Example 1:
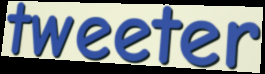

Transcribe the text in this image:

tweeter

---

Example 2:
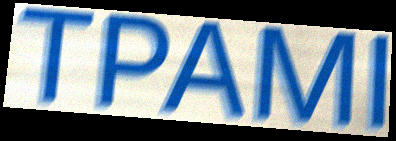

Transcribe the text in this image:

TPAMI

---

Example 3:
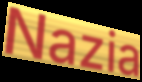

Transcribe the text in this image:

Nazia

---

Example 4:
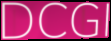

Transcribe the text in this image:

DCGI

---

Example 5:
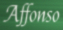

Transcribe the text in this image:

Affonso